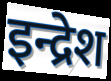
इन्द्रेश